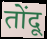
तोंदू